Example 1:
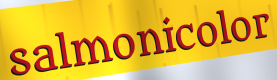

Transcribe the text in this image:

salmonicolor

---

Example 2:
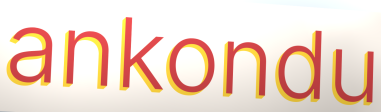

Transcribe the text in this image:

ankondu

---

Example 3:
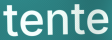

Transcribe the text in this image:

tente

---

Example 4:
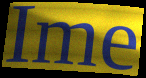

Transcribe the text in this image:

Ime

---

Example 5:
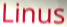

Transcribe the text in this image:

Linus